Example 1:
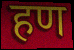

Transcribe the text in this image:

हण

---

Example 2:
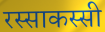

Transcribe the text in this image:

रस्साकस्सी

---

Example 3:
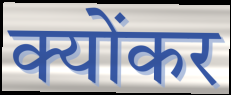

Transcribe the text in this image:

क्योंकर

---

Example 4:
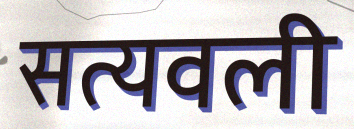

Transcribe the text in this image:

सत्यवली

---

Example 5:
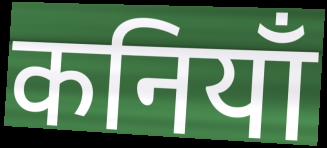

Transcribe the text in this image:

कनियाँ